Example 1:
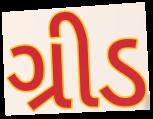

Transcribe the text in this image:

ગ્રીડ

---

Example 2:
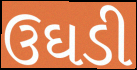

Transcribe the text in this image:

ઉઘડી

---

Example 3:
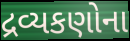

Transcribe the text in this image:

દ્રવ્યકણોના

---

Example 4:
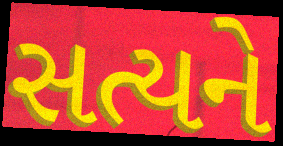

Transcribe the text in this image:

સત્યને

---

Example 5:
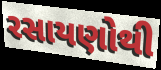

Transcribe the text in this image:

રસાયણોથી